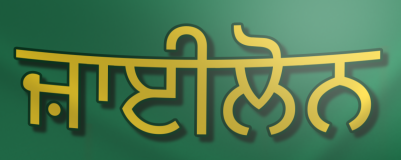
ਜ਼ਾਈਲੋਨ